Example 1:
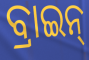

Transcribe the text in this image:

ବ୍ରାଇନ୍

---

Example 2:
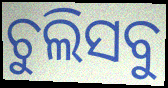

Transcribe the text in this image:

ଚୁଲିସବୁ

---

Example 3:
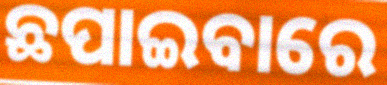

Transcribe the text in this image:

ଛପାଇବାରେ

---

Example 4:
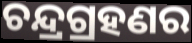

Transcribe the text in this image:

ଚନ୍ଦ୍ରଗ୍ରହଣର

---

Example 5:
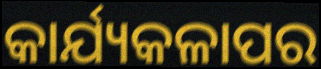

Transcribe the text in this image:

କାର୍ଯ୍ୟକଳାପର